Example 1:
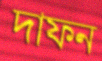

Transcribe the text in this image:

দাফন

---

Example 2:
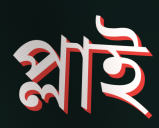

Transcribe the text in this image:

প্লাই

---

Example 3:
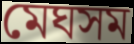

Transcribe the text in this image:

মেঘসম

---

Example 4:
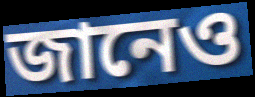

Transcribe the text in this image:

জানেও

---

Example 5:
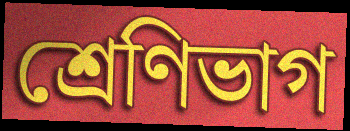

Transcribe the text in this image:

শ্রেণিভাগ